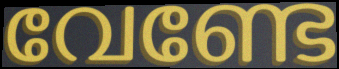
വേണ്ടേ